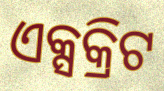
ଏକ୍ସକ୍ରିଟ